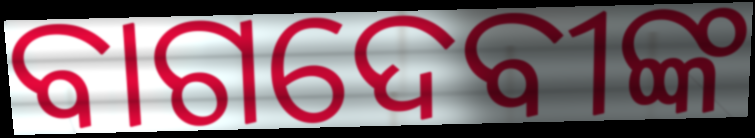
ବାଗଦେବୀଙ୍କ